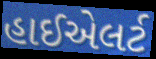
હાઈએલર્ટ